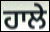
ਹਾਲੇ